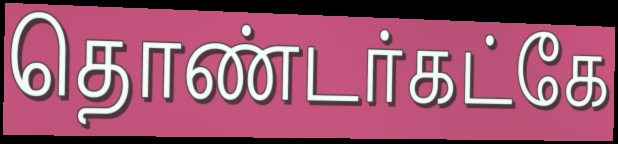
தொண்டர்கட்கே